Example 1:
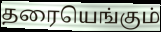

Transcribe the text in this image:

தரையெங்கும்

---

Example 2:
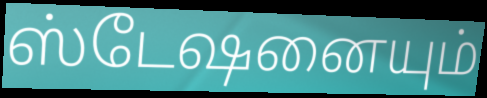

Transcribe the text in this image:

ஸ்டேஷனையும்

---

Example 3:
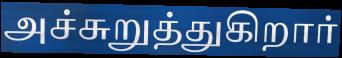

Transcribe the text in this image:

அச்சுறுத்துகிறார்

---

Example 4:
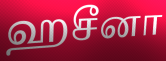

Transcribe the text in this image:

ஹசீனா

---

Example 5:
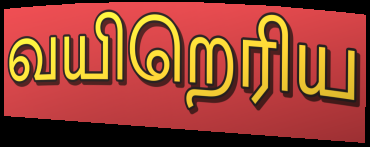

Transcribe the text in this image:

வயிறெரிய